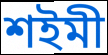
শইমী